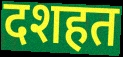
दशहत